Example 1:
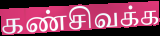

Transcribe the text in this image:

கண்சிவக்க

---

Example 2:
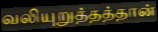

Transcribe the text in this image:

வலியுறுத்தத்தான்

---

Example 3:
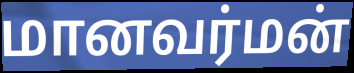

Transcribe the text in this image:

மானவர்மன்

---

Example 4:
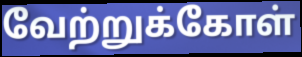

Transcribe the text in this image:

வேற்றுக்கோள்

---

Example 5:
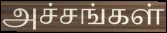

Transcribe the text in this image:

அச்சங்கள்